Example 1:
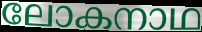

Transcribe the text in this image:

ലോകനാഥ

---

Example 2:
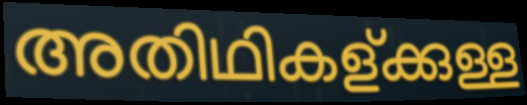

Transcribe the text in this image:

അതിഥികള്ക്കുള്ള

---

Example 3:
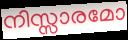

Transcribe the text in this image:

നിസ്സാരമോ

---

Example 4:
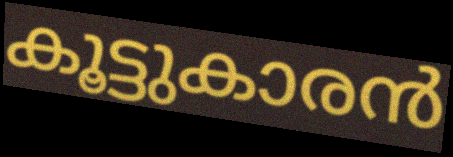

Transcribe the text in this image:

കൂട്ടുകാരൻ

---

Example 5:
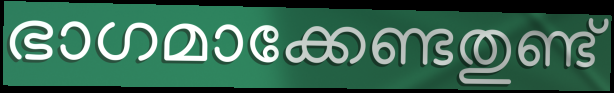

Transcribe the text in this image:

ഭാഗമാക്കേണ്ടതുണ്ട്